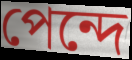
পেন্দে